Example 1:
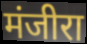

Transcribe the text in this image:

मंजीरा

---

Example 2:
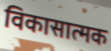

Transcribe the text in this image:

विकासात्मक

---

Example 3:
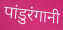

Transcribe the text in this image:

पांडुरंगानी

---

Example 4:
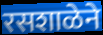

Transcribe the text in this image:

रसशाळेने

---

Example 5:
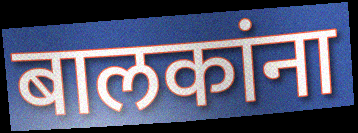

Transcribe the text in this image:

बालकांना